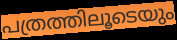
പത്രത്തിലൂടെയും